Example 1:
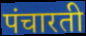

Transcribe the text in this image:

पंचारती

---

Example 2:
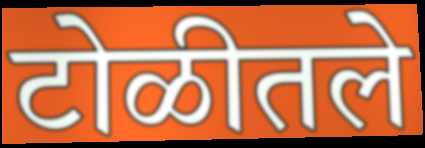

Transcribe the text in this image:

टोळीतले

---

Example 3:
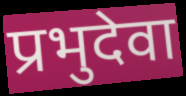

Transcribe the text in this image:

प्रभुदेवा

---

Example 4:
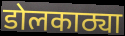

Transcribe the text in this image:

डोलकाठ्या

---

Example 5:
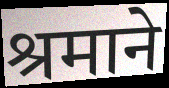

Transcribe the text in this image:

श्रमाने